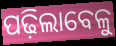
ପଢ଼ିଲାବେଳୁ